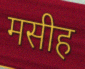
मसीह